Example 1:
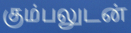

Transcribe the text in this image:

கும்பலுடன்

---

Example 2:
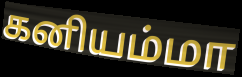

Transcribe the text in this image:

கனியம்மா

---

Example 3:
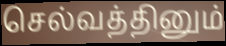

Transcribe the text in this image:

செல்வத்தினும்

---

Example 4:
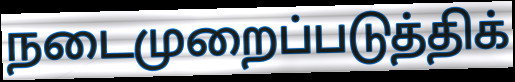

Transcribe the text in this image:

நடைமுறைப்படுத்திக்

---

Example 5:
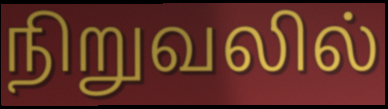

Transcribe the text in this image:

நிறுவலில்